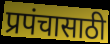
प्रपंचासाठी